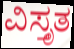
ವಿಸ್ತೃತ